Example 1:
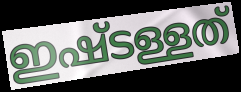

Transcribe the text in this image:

ഇഷ്ടള്ളത്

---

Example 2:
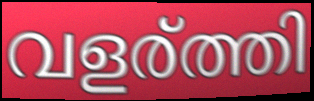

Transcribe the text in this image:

വളര്ത്തി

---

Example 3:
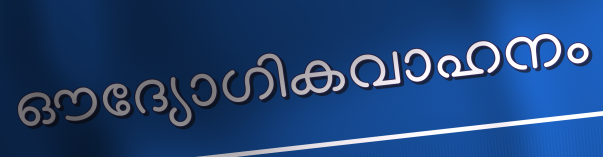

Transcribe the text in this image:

ഔദ്യോഗികവാഹനം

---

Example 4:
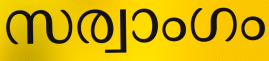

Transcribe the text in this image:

സര്വാംഗം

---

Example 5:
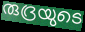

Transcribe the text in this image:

രുദ്രയുടെ